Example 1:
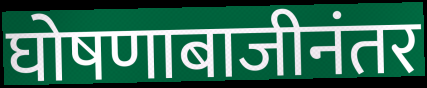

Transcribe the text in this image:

घोषणाबाजीनंतर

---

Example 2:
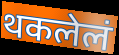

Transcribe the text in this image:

थकलेलं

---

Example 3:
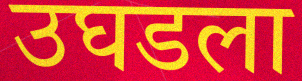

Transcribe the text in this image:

उघडला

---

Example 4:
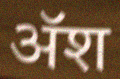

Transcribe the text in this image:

ॲश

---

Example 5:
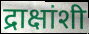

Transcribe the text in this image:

द्राक्षांशी